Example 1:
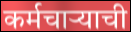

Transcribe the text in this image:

कर्मचाऱ्याची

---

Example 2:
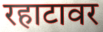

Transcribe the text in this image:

रहाटावर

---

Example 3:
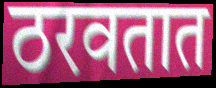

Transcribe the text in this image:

ठरवतात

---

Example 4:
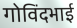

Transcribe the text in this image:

गोविंदभाई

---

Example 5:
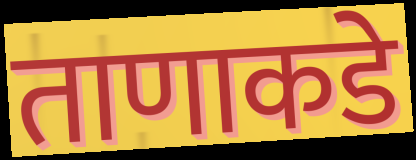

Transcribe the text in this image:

ताणाकडे